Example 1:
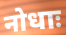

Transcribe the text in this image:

नोधाः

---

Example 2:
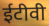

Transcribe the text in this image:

ईटीवी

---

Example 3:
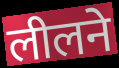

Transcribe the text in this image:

लीलने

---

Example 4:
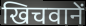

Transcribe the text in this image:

खिचवानें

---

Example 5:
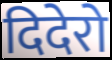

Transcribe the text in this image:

दिदेरो